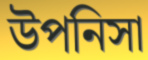
উপনিসা